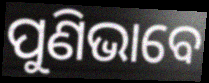
ପୁଣିଭାବେ